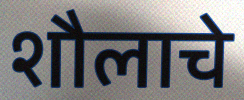
शौलाचे